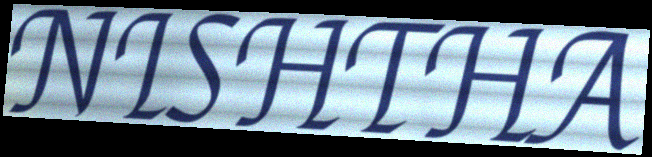
NISHTHA